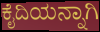
ಕೈದಿಯನ್ನಾಗಿ